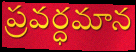
ప్రవర్ధమాన